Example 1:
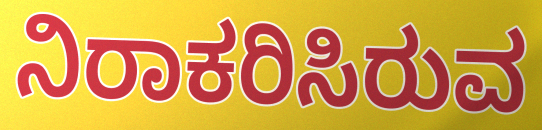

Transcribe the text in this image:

ನಿರಾಕರಿಸಿರುವ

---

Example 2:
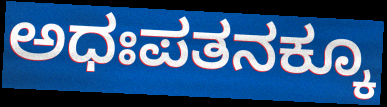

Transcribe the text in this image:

ಅಧಃಪತನಕ್ಕೂ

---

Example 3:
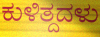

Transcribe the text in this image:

ಕುಳಿತ್ದದಳು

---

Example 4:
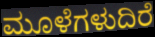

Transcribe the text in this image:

ಮೂಳೆಗಳುದಿರೆ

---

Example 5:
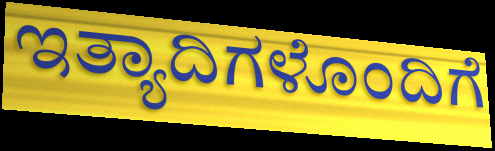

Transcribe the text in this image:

ಇತ್ಯಾದಿಗಳೊಂದಿಗೆ